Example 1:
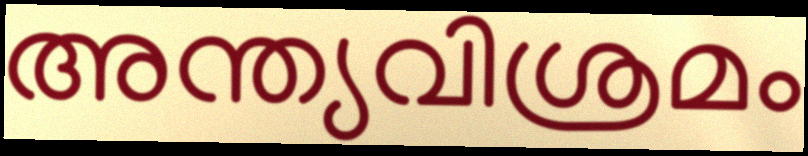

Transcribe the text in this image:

അന്ത്യവിശ്രമം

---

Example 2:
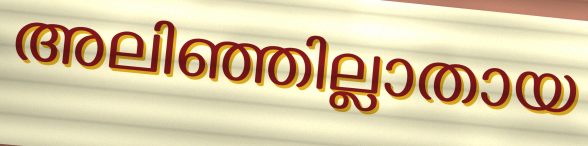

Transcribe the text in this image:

അലിഞ്ഞില്ലാതായ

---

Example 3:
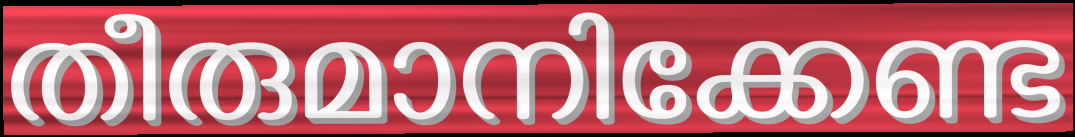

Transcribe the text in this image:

തീരുമാനിക്കേണ്ട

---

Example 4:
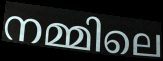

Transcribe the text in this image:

നമ്മിലെ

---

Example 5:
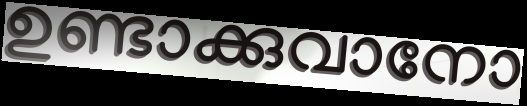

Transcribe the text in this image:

ഉണ്ടാക്കുവാനോ